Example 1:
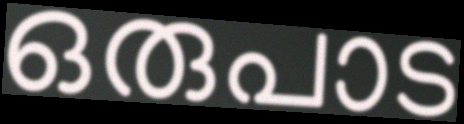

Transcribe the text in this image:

ഒരുപാട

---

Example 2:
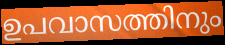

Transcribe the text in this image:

ഉപവാസത്തിനും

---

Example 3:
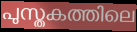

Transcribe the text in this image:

പുസ്തകത്തിലെ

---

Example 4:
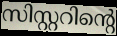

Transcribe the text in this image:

സിസ്റ്ററിന്റെ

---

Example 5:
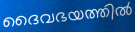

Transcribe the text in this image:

ദൈവഭയത്തിൽ